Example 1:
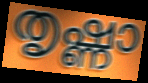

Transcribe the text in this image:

തൃഷ്ണാ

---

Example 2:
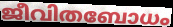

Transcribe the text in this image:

ജീവിതബോധം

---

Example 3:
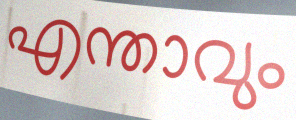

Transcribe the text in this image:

എന്താവും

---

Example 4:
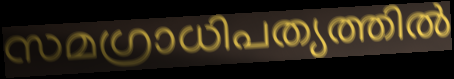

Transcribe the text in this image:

സമഗ്രാധിപത്യത്തിൽ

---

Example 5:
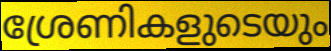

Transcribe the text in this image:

ശ്രേണികളുടെയും